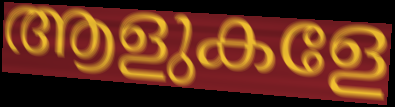
ആളുകളേ